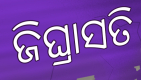
ଜିଘ୍ରାସତି